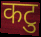
कटु